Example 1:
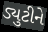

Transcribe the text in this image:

ડ્યુટીને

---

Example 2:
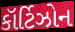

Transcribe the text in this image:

કૉર્ટિઝોન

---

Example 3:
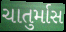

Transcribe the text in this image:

ચાતુર્માસ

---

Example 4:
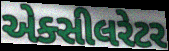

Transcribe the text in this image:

એક્સીલરેટર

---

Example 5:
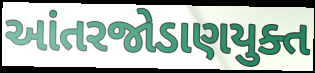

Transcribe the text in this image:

આંતરજોડાણયુક્ત